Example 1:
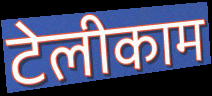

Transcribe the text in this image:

टेलीकाम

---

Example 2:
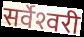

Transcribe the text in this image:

सर्वेश्वरी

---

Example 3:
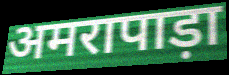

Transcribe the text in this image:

अमरापाड़ा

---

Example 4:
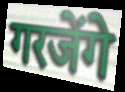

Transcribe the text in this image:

गरजेंगे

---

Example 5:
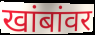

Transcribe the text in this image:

खांबांवर